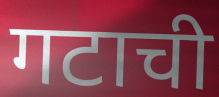
गटाची